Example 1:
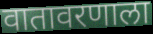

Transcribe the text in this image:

वातावरणाला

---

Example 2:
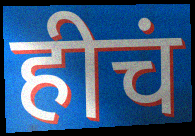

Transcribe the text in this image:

हीचं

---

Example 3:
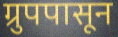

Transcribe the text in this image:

ग्रुपपासून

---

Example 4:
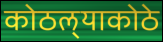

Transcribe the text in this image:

कोठल्याकोठे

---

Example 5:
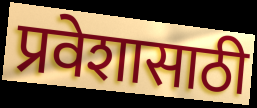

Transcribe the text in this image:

प्रवेशासाठी